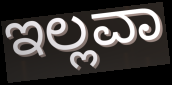
ಇಲ್ಲವಾ